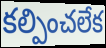
కల్పించలేక